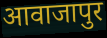
आवाजापुर